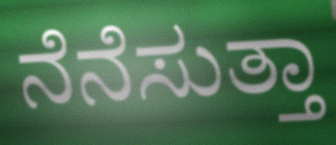
ನೆನೆಸುತ್ತಾ